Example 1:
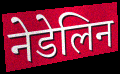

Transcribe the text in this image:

नेडेलिन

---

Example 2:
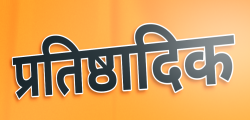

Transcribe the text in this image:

प्रतिष्ठादिक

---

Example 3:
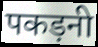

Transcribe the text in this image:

पकड़नी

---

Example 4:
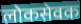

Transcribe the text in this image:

लोकसेवक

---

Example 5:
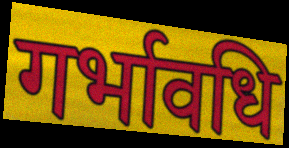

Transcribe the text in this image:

गर्भावधि